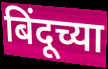
बिंदूच्या